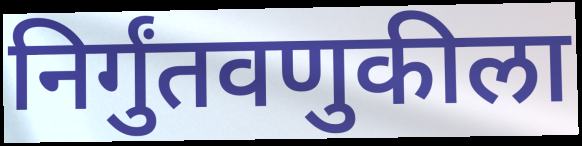
निर्गुंतवणुकीला